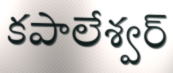
కపాలేశ్వర్